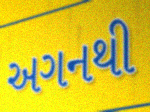
અગનથી